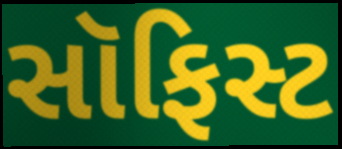
સૉફિસ્ટ